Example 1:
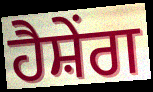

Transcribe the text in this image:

ਹੈਸ਼ੇਂਗ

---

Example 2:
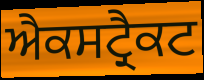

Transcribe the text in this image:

ਐਕਸਟ੍ਰੈਕਟ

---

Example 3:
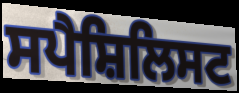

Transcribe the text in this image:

ਸਪੈਸ਼ਿਲਿਸਟ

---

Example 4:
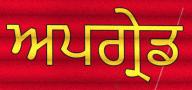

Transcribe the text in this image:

ਅਪਗ੍ਰੇਡ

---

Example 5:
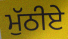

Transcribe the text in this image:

ਮੁੱਠੀਏ